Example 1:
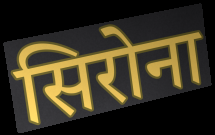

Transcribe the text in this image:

सिरोना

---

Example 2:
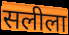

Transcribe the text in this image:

सलीला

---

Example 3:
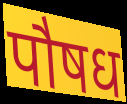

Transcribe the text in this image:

पौषध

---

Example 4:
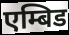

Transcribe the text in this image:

एम्बिड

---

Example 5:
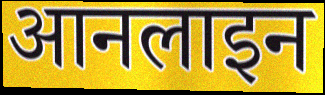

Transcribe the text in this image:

आनलाइन